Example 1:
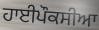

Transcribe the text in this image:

ਹਾਈਪੌਕਸੀਆ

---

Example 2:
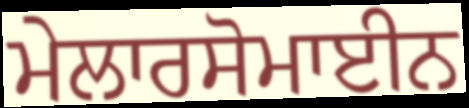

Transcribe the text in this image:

ਮੇਲਾਰਸੋਮਾਈਨ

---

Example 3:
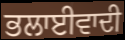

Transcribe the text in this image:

ਭਲਾਈਵਾਦੀ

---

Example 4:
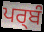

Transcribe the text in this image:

ਪਰ੍ਬੰ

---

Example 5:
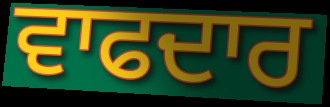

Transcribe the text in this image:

ਵਾਫਦਾਰ